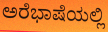
ಅರೆಭಾಷೆಯಲ್ಲಿ